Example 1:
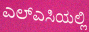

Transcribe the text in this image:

ಎಲ್ಎಸಿಯಲ್ಲಿ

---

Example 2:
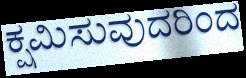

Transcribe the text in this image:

ಕ್ಷಮಿಸುವುದರಿಂದ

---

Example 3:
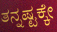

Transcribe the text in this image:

ತನ್ನಷ್ಟಕ್ಕೇ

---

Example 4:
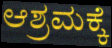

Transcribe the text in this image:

ಆಶ್ರಮಕ್ಕೆ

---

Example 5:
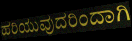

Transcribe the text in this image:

ಹರಿಯುವುದರಿಂದಾಗಿ